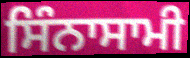
ਸਿੰਨਾਸਾਮੀ